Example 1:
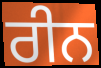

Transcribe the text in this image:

ਰੀਨ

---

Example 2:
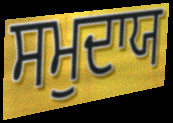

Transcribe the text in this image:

ਸਮੁਦਾਯ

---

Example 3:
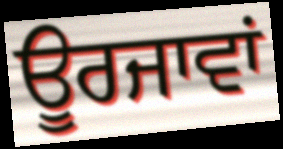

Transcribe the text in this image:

ਊਰਜਾਵਾਂ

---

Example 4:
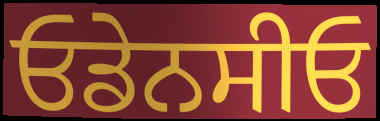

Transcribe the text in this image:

ਓਡੇਨਸੀਓ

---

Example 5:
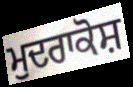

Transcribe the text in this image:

ਮੁਦਰਾਕੋਸ਼